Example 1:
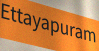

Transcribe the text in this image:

Ettayapuram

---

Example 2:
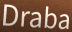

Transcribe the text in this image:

Draba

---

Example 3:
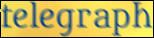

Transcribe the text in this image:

telegraph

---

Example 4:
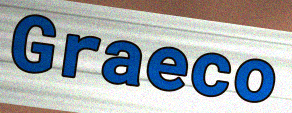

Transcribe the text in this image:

Graeco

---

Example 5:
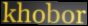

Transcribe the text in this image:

khobor